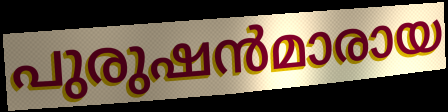
പുരുഷൻമാരായ